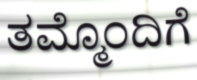
ತಮ್ಮೊಂದಿಗೆ